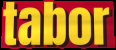
tabor